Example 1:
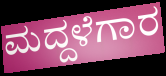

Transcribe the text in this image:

ಮದ್ದಳೆಗಾರ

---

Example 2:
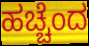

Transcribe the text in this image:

ಹಚ್ಚೆಂದ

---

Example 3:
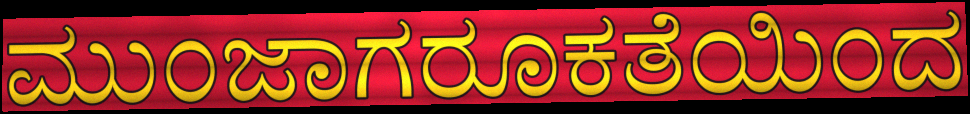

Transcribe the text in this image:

ಮುಂಜಾಗರೂಕತೆಯಿಂದ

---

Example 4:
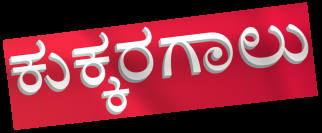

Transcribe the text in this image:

ಕುಕ್ಕರಗಾಲು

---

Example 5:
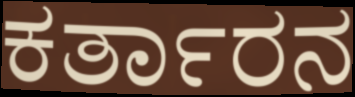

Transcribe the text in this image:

ಕರ್ತಾರನ